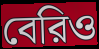
বেরিও